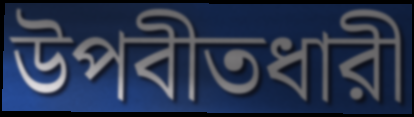
উপবীতধারী